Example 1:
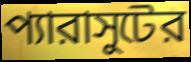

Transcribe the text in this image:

প্যারাসুটের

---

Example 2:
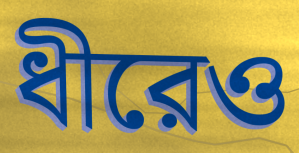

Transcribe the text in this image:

ধীরেও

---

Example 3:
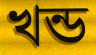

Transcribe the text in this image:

খন্ড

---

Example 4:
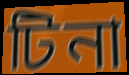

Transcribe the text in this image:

টিনা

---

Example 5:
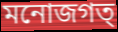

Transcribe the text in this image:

মনোজগত্